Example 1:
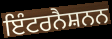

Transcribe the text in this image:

ਇੰਟਰਨੈਸ਼ਨਨ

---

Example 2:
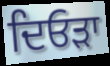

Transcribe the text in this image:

ਦਿਓੜਾ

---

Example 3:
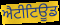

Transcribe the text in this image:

ਐਟੀਟਿਊਡ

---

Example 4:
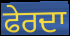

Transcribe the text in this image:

ਫੇਰਦਾ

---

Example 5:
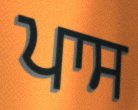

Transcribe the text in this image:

ਪਾਸ